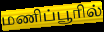
மணிப்பூரில்